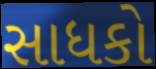
સાધકો